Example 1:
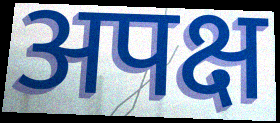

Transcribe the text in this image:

अपक्ष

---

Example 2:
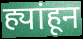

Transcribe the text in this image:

ह्यांहून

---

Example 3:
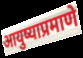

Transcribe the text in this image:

आयुष्याप्रमाणे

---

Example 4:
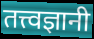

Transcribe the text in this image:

तत्त्वज्ञानी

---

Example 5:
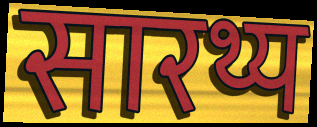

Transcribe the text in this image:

सारथ्य